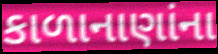
કાળાનાણાંના